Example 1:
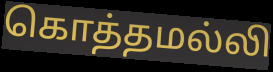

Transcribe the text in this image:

கொத்தமல்லி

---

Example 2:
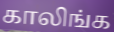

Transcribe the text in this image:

காலிங்க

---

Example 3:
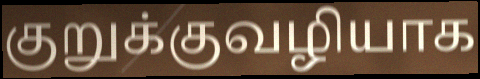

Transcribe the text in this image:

குறுக்குவழியாக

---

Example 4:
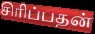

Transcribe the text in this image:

சிரிப்பதன்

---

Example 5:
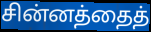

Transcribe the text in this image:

சின்னத்தைத்